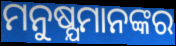
ମନୁଷ୍ଯମାନଙ୍କର